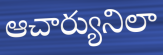
ఆచార్యునిలా